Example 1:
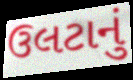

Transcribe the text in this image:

ઉલટાનું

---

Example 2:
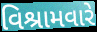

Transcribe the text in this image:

વિશ્રામવારે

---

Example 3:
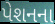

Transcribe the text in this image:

પેશનના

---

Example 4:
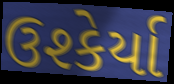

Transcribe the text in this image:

ઉશ્કેર્યા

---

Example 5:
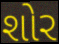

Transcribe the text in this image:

શોર